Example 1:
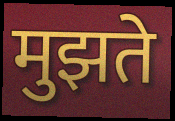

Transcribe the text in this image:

मुझते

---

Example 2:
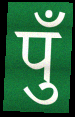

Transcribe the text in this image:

पुँ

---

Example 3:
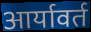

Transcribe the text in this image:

आर्यावर्त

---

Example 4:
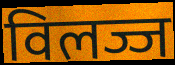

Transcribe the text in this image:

विलज्ज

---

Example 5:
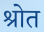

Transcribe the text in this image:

श्रोत